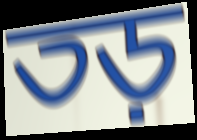
তড়